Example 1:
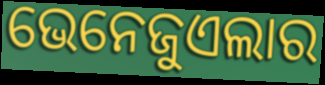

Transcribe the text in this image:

ଭେନେଜୁଏଲାର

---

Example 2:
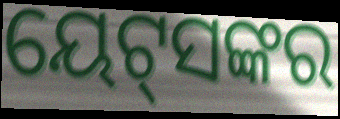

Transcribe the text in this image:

ୟେଟ୍‌ସଙ୍କର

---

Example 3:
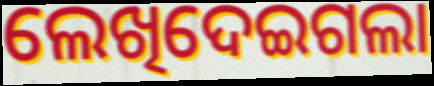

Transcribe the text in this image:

ଲେଖିଦେଇଗଲା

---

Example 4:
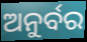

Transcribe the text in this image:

ଅନୁର୍ବର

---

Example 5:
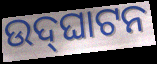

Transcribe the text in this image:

ଉଦ୍‌ଘାଟନ